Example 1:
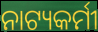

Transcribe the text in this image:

ନାଟ୍ୟକର୍ମୀ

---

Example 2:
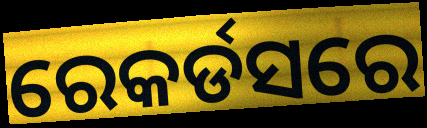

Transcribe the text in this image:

ରେକର୍ଡସରେ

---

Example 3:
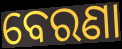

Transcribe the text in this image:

ବେରଣା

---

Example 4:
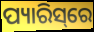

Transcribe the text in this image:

ପ୍ୟାରିସ୍‌ରେ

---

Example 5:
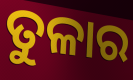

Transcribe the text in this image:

ତୁଳାର